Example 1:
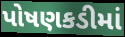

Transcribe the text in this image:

પોષણકડીમાં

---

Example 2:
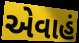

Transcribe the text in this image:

એવાહં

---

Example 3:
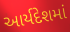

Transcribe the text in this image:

આર્યદેશમાં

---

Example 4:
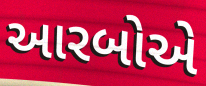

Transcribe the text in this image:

આરબોએ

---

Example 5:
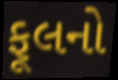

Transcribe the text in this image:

ફૂલનો